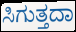
ಸಿಗುತ್ತದಾ